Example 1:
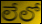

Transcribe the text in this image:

లేలో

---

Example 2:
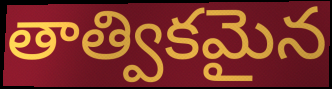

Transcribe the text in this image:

తాత్వికమైన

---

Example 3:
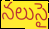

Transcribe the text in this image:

నలుసై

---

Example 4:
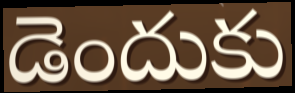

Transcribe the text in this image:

డెందుకు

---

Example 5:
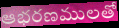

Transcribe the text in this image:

ఆభరణములతో